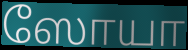
ஸோயா